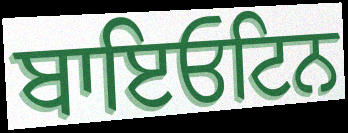
ਬਾਇਓਟਿਨ